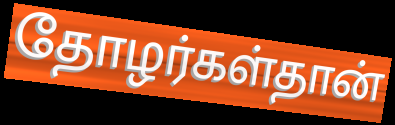
தோழர்கள்தான்